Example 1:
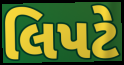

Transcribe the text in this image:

લિપટે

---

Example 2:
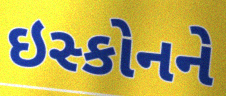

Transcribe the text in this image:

ઇસ્કોનને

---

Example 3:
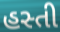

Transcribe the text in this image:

હસ્તી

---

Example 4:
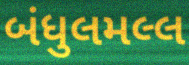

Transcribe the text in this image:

બંધુલમલ્લ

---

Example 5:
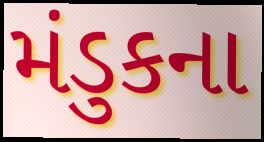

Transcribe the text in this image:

મંડુકના